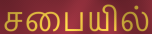
சபையில்